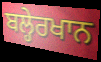
ਬਲ੍ਹੇਰਖਾਨ